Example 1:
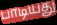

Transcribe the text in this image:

பாடியது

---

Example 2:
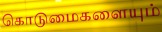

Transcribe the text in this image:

கொடுமைகளையும்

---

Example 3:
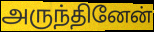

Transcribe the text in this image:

அருந்தினேன்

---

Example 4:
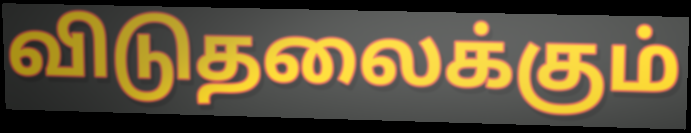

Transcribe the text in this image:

விடுதலைக்கும்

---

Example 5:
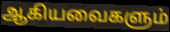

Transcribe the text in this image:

ஆகியவைகளும்